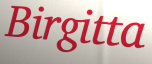
Birgitta